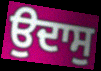
ਉਦਾਸੁ